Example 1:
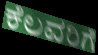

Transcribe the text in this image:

ಕೆಲವರಿಗೆ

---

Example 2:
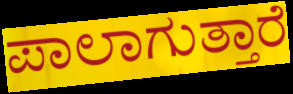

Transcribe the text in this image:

ಪಾಲಾಗುತ್ತಾರೆ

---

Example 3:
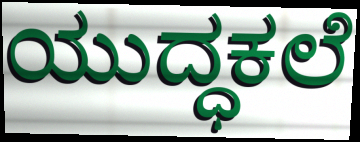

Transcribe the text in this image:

ಯುದ್ಧಕಲೆ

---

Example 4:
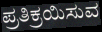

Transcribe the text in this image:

ಪ್ರತಿಕ್ರಯಿಸುವ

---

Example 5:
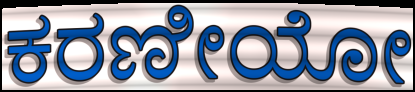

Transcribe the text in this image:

ಕರಣೀಯೋ